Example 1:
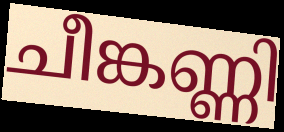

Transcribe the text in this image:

ചീങ്കണ്ണി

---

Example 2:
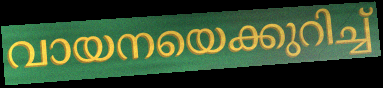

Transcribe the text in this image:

വായനയെക്കുറിച്ച്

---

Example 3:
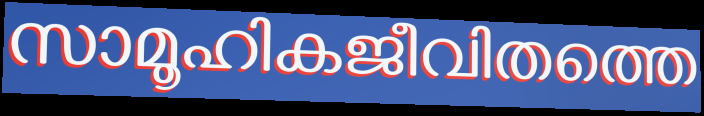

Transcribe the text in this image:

സാമൂഹികജീവിതത്തെ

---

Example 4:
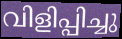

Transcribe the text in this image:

വിളിപ്പിച്ചു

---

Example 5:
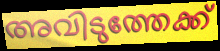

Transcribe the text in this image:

അവിടുത്തേക്ക്